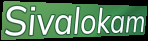
Sivalokam